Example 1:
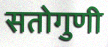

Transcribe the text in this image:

सतोगुणी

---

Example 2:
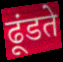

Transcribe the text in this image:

ढूंडते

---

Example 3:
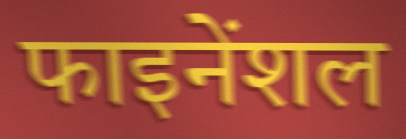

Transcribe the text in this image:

फाइनेंशल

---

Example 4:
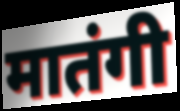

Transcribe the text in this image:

मातंगी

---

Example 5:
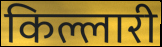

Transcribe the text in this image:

किल्लारी